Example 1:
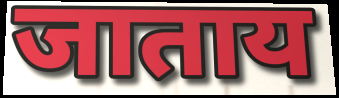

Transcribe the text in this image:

जाताय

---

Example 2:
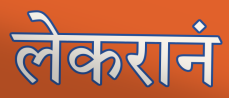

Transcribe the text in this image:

लेकरानं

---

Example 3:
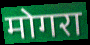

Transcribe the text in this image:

मोगरा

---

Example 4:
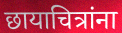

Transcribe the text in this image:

छायाचित्रांना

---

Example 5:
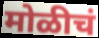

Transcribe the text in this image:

मोळीचं